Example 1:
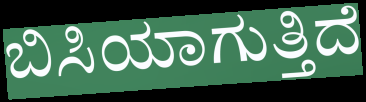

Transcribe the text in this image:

ಬಿಸಿಯಾಗುತ್ತಿದೆ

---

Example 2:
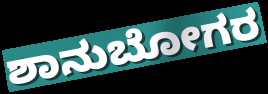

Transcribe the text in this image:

ಶಾನುಬೋಗರ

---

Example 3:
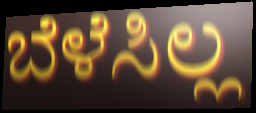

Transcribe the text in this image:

ಬೆಳೆಸಿಲ್ಲ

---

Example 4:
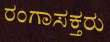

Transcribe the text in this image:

ರಂಗಾಸಕ್ತರು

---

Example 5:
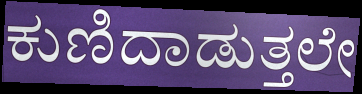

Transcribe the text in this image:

ಕುಣಿದಾಡುತ್ತಲೇ